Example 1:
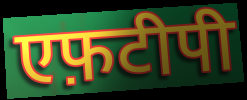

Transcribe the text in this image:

एफ़टीपी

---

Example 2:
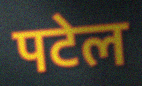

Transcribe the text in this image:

पटेल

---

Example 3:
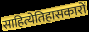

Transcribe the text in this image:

साहित्येतिहासकारों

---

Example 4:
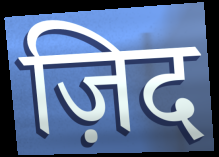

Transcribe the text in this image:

ज़िद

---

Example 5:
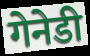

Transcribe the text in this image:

गेनेडी